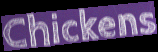
Chickens